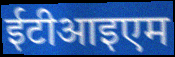
ईटीआइएम